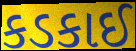
કડકાઈ